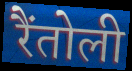
रैंतोली